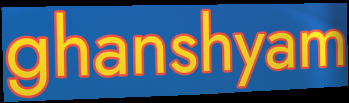
ghanshyam